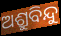
ଅଶ୍ରୁବିନ୍ଦୁ